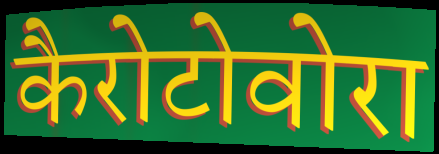
कैरोटोवोरा